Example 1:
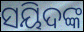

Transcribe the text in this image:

ସୟିଦଙ୍କ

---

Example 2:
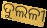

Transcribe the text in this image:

ଦୁଲଳୀ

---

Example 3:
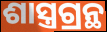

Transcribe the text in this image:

ଶାସ୍ତ୍ରଗ୍ରନ୍ଥ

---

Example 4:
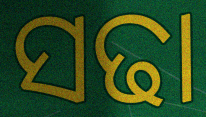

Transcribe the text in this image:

ସଢା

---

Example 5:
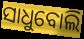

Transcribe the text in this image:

ସାଧୁବୋଲି